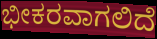
ಭೀಕರವಾಗಲಿದೆ